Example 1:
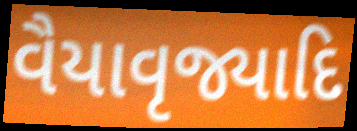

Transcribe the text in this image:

વૈયાવૃજ્યાદિ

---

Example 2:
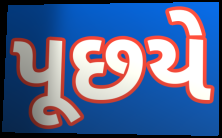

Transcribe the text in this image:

પૂછયે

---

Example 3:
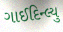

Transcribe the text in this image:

ગાઈદિન્લ્યુ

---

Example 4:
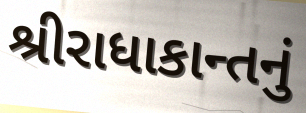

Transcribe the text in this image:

શ્રીરાધાકાન્તનું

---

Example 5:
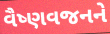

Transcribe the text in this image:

વૈષ્ણવજનને